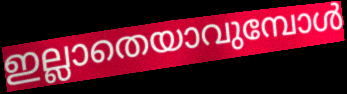
ഇല്ലാതെയാവുമ്പോൾ